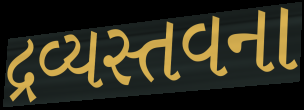
દ્રવ્યસ્તવના